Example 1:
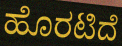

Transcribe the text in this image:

ಹೊರಟಿದೆ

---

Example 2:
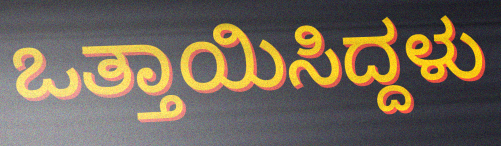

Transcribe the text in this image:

ಒತ್ತಾಯಿಸಿದ್ದಳು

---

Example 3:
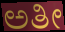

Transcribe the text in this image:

ಅತೀ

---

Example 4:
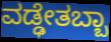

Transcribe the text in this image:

ವಡ್ಢೇತಬ್ಬಾ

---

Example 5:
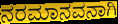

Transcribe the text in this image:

ನರಮಾನವನಾಗಿ